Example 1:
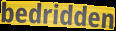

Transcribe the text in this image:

bedridden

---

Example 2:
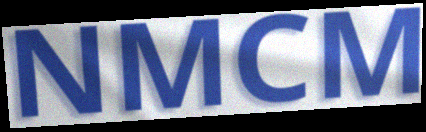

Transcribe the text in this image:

NMCM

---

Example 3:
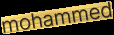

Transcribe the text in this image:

mohammed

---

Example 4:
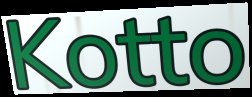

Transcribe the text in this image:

Kotto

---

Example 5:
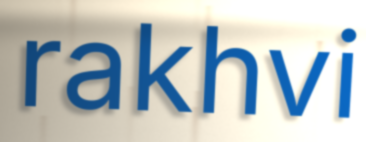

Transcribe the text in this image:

rakhvi